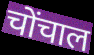
चोंचाल